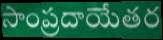
సాంప్రదాయేతర